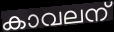
കാവലന്